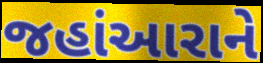
જહાંઆરાને